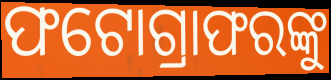
ଫଟୋଗ୍ରାଫରଙ୍କୁ